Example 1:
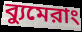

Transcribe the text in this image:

ব্যুমেরাং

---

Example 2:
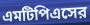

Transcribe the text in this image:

এমটিপিএসের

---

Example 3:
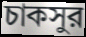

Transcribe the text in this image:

চাকসুর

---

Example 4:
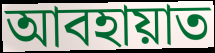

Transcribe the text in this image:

আবহায়াত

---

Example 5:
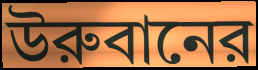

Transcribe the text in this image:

উরুবানের